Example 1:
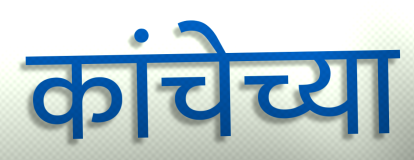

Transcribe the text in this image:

कांचेच्या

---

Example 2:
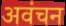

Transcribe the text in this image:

अवंचन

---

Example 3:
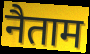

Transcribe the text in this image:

नैताम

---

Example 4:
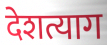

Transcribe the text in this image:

देशत्याग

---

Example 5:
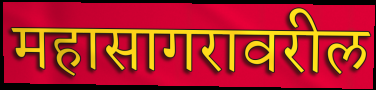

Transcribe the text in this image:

महासागरावरील